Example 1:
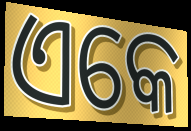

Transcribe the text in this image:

ଏକେ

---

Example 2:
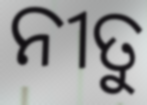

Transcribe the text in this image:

ନୀତୁ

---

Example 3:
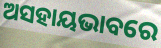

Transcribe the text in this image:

ଅସହାୟଭାବରେ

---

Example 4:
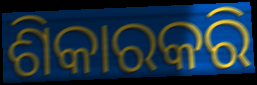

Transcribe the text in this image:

ଶିକାରକରି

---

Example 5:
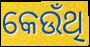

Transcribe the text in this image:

କେଉଁଥି